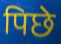
पिछे